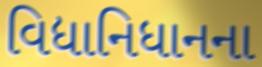
વિદ્યાનિધાનના